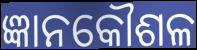
ଜ୍ଞାନକୌଶଳ